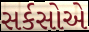
સર્કસોએ